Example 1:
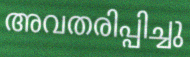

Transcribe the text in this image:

അവതരിപ്പിച്ചു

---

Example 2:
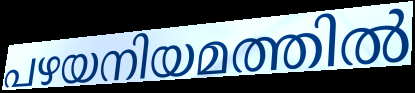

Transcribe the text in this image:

പഴയനിയമത്തിൽ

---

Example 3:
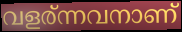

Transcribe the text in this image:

വളര്ന്നവനാണ്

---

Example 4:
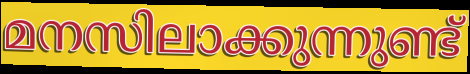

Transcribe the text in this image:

മനസിലാക്കുന്നുണ്ട്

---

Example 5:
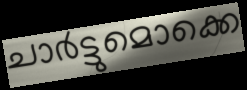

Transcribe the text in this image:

ചാർട്ടുമൊക്കെ